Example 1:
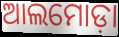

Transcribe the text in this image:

ଆଲମୋଡ଼ା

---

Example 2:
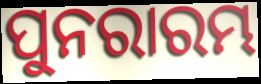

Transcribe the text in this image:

ପୁନରାରମ୍ଭ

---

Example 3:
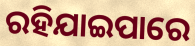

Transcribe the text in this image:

ରହିଯାଇପାରେ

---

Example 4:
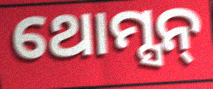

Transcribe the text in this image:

ଥୋମ୍ସନ୍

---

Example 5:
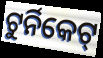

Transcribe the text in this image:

ଟୁର୍ନିକେଟ୍